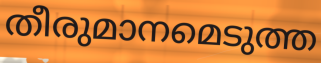
തീരുമാനമെടുത്ത